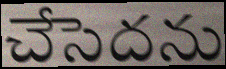
చేసెదను